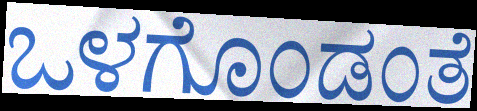
ಒಳಗೊಂಡಂತೆ